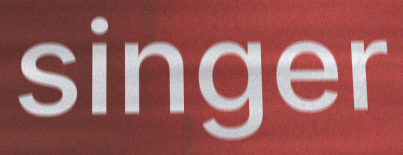
singer